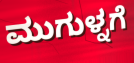
ಮುಗುಳ್ನಗೆ